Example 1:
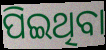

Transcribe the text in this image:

ପିଇଥିବା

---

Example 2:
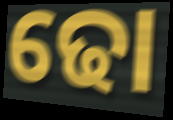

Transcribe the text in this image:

ଢୋ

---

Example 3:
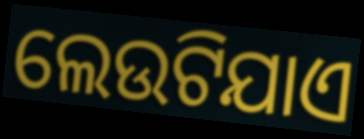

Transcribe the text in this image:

ଲେଉଟିଯାଏ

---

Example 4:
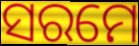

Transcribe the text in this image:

ସରମେ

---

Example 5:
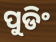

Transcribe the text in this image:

ପୁଡିଂ